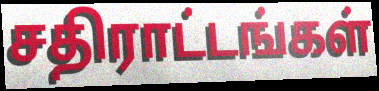
சதிராட்டங்கள்